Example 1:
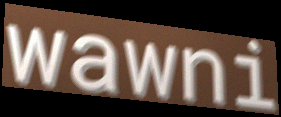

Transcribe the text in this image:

wawni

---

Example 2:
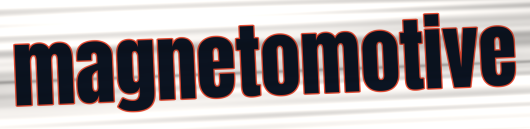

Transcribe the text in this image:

magnetomotive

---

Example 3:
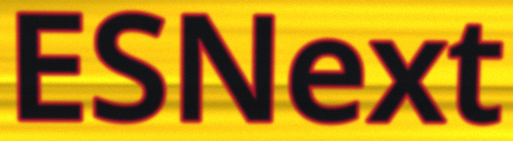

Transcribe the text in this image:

ESNext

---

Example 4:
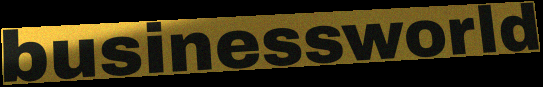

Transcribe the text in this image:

businessworld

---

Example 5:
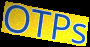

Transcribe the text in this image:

OTPs